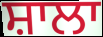
ਸ਼ਾਲਾ